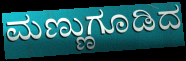
ಮಣ್ಣುಗೂಡಿದ